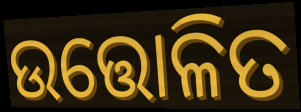
ଉତ୍ତୋଳିତ